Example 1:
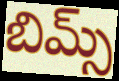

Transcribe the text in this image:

బిమ్స్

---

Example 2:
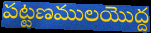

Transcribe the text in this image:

పట్టణములయొద్ద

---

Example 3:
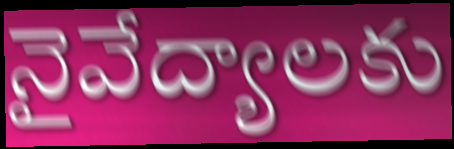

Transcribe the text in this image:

నైవేద్యాలకు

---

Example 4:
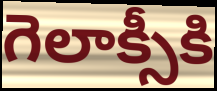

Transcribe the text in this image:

గెలాక్సీకి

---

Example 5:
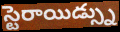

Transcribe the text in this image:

స్టెరాయిడ్స్ను